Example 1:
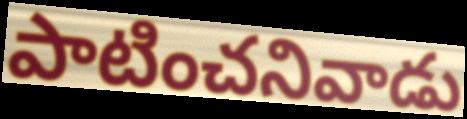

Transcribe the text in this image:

పాటించనివాడు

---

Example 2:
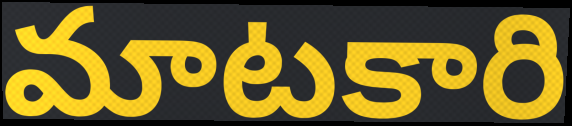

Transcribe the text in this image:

మాటకారి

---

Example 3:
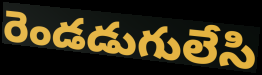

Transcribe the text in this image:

రెండడుగులేసి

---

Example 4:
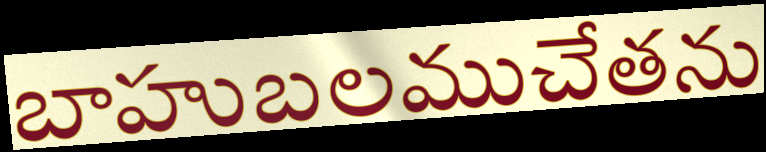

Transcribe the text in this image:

బాహుబలముచేతను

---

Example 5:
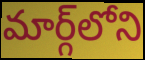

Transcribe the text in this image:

మార్గ్‌లోని